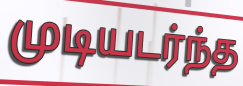
முடியடர்ந்த